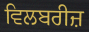
ਵਿਲਬਰੀਜ਼